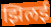
झिलई